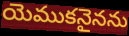
యెముకనైనను